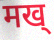
मख्